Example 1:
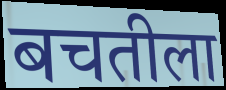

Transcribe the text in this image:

बचतीला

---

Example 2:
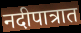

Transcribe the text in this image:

नदीपात्रात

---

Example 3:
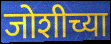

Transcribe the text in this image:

जोशीच्या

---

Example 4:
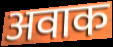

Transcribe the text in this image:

अवाक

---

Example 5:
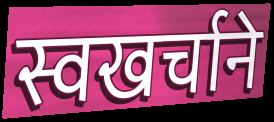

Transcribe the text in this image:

स्वखर्चाने